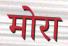
मोरा